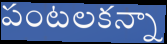
పంటలకన్నా